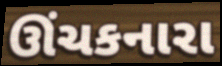
ઊંચકનારા